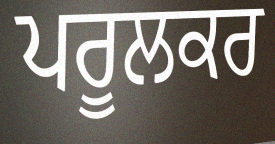
ਪਰੂਲਕਰ